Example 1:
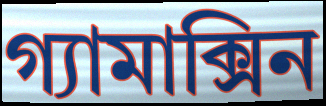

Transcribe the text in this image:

গ্যামাক্সিন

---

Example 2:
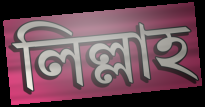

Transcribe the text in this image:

লিল্লাহ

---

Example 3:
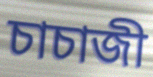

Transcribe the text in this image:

চাচাজী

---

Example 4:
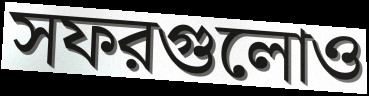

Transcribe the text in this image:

সফরগুলোও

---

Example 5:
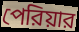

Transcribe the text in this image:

পেরিয়ার